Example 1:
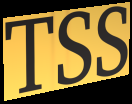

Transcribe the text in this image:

TSS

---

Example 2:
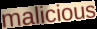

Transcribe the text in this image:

malicious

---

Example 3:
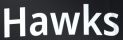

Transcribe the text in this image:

Hawks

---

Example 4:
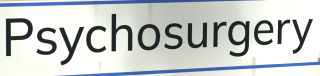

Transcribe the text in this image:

Psychosurgery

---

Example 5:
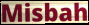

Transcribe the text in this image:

Misbah